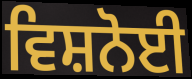
ਵਿਸ਼ਨੋਈ